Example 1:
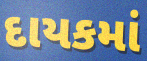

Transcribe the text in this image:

દાયકમાં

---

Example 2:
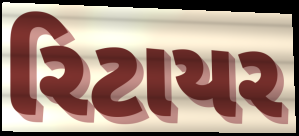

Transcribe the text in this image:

રિટાયર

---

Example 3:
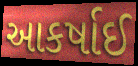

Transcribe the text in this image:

આકર્ષાઈ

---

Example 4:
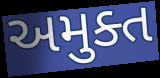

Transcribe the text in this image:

અમુક્ત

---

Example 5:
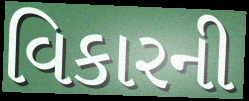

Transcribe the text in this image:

વિકારની